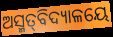
ଅସ୍ମତ୍‌ବିଦ୍ୟାଳୟେ